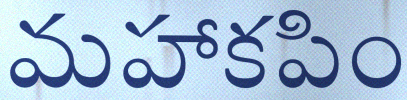
మహాకపిం